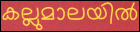
കല്ലുമാലയിൽ